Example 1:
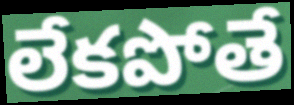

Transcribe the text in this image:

లేకపోతే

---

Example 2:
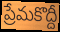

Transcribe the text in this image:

ప్రేమకొద్దీ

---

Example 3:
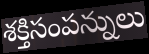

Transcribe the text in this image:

శక్తిసంపన్నులు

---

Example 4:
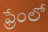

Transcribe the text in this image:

ఫ్రేంలో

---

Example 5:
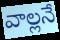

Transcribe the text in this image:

వాల్లనే